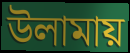
উলামায়